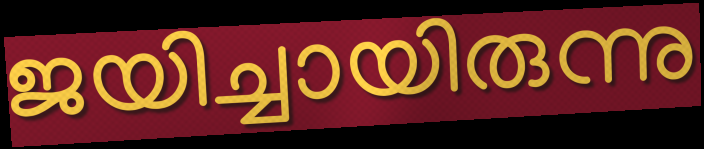
ജയിച്ചായിരുന്നു